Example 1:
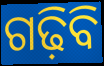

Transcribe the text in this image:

ଗଢ଼ିବି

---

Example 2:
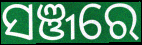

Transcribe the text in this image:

ସଞ୍ଜରେ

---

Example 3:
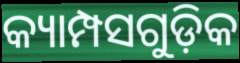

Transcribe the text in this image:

କ୍ୟାମ୍ପସଗୁଡ଼ିକ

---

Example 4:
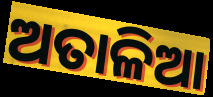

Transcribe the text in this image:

ଅତାଳିଆ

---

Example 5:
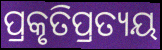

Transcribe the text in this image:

ପ୍ରକୃତିପ୍ରତ୍ୟୟ